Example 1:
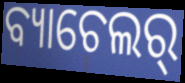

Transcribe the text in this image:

ବ୍ୟାଚେଲର୍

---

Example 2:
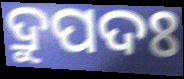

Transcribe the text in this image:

ଦ୍ରୁପଦଃ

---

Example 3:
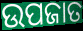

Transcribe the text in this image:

ଉପଜାତ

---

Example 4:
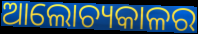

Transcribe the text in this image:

ଆଲୋଚ୍ୟକାଳର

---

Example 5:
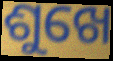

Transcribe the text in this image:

ଶୁଖେ